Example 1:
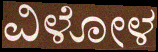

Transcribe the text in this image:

ವಿಳೋಳ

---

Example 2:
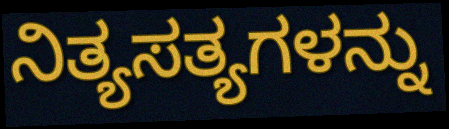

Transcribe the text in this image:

ನಿತ್ಯಸತ್ಯಗಳನ್ನು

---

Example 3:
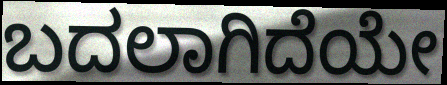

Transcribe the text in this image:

ಬದಲಾಗಿದೆಯೇ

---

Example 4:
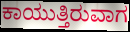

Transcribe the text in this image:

ಕಾಯುತ್ತಿರುವಾಗ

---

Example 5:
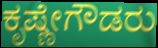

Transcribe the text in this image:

ಕೃಷ್ಣೇಗೌಡರು